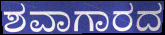
ಶವಾಗಾರದ